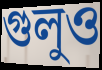
গুলুও